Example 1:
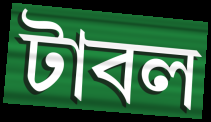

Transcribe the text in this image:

টাবল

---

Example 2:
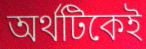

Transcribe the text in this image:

অর্থটিকেই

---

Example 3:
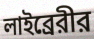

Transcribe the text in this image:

লাইব্রেরীর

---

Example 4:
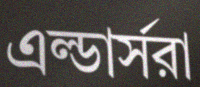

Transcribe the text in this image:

এল্ডার্সরা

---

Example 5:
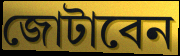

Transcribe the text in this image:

জোটাবেন